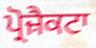
ਪ੍ਰੋਜ਼ੈਕਟਾ